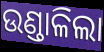
ଉଣ୍ଡାଳିଲା